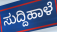
ಸುದ್ದಿಹಾಳೆ